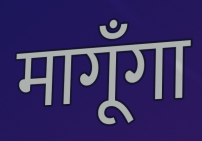
मागूँगा